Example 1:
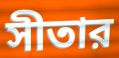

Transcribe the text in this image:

সীতার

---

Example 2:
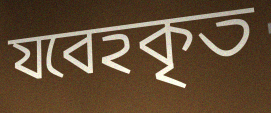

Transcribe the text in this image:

যবেহকৃত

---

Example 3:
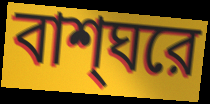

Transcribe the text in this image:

বাশ্ঘরে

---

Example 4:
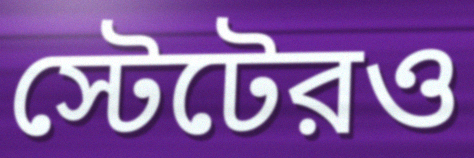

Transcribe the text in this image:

স্টেটেরও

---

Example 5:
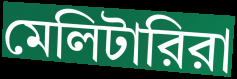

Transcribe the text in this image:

মেলিটারিরা